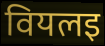
वियलइ